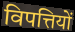
विपत्तियों